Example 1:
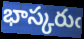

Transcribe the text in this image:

భాస్కరుఁ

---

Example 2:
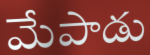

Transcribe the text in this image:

మేపాడు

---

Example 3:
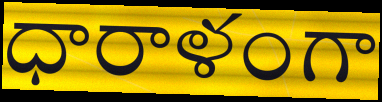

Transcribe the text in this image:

ధారాళంగా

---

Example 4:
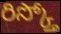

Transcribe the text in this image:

రిస్క్తో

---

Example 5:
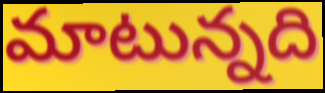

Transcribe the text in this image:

మాటున్నది